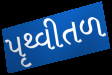
પૃથ્વીતળ